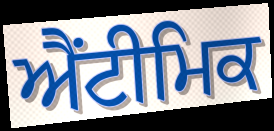
ਐਂਟੀਮਿਕ